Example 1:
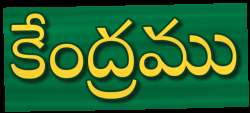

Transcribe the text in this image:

కేంద్రము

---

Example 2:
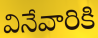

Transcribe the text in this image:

వినేవారికి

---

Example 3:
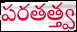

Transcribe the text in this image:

పరతత్త్వ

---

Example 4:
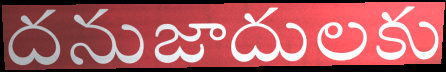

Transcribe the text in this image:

దనుజాదులకు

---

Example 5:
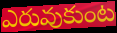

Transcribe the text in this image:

ఎరువుకుంట